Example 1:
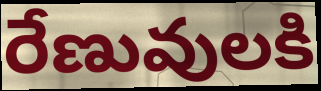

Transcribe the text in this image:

రేణువులకి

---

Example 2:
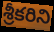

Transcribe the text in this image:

శ్రీకరిని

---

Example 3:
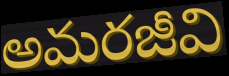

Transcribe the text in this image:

అమరజీవి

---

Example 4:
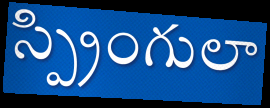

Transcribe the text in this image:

స్ప్రింగులా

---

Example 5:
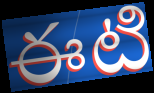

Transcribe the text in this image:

ఈటి